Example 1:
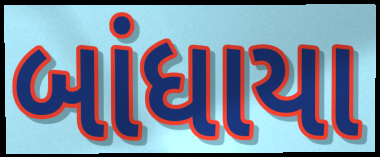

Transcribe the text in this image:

બાંધાયા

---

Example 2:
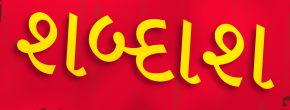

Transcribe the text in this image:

શબ્દાશ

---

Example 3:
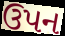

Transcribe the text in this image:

ઉપન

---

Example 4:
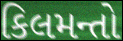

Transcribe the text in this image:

કિલમન્તો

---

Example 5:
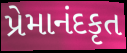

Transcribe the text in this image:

પ્રેમાનંદકૃત